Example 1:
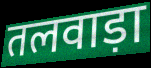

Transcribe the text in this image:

तलवाड़ा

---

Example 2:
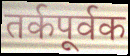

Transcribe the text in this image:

तर्कपूर्वक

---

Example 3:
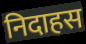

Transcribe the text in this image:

निदाहस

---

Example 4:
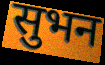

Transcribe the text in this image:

सुभन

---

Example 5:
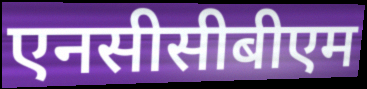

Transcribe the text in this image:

एनसीसीबीएम